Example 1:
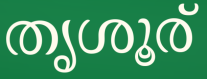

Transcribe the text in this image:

തൃശൂര്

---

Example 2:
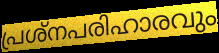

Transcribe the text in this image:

പ്രശ്നപരിഹാരവും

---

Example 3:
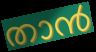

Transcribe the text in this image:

താൻ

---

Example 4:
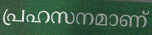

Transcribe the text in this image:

പ്രഹസനമാണ്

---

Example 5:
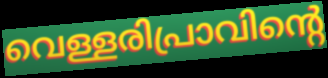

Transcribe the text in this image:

വെള്ളരിപ്രാവിന്റെ